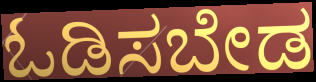
ಓಡಿಸಬೇಡ